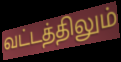
வட்டத்திலும்